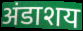
अंडाशय